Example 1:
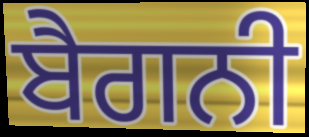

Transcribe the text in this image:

ਬੈਗਨੀ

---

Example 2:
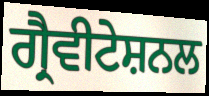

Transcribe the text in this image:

ਗ੍ਰੈਵੀਟੇਸ਼ਨਲ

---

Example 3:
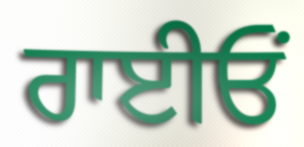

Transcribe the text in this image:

ਰਾਈਓਂ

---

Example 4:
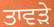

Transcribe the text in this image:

ਤਾਵੜੇ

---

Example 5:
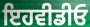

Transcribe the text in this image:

ਇਹਵੀਡੀਓ